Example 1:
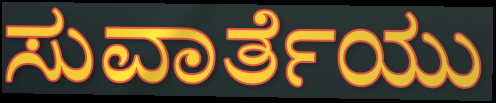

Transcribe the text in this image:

ಸುವಾರ್ತೆಯು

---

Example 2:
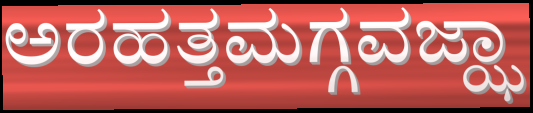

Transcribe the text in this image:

ಅರಹತ್ತಮಗ್ಗವಜ್ಝಾ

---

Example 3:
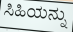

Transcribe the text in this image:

ಸಿಹಿಯನ್ನು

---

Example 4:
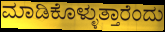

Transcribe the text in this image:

ಮಾಡಿಕೊಳ್ಳುತ್ತಾರೆಂದು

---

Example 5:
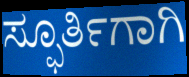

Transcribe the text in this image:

ಸ್ಫೂರ್ತಿಗಾಗಿ